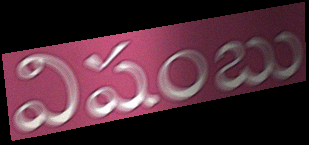
విషంబు